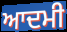
ਆਦਮੀ